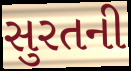
સુરતની